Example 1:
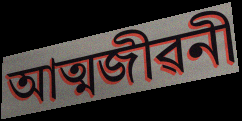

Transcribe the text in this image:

আত্মজীৱনী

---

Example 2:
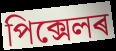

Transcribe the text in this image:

পিক্সেলৰ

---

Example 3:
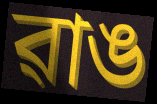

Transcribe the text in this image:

ৱাঙ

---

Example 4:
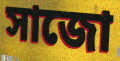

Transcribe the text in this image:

সাজো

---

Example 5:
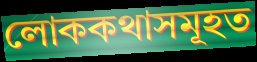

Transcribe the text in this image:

লোককথাসমূহত